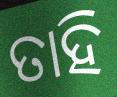
ତାହି